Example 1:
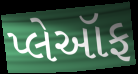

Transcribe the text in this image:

પ્લેઑફ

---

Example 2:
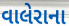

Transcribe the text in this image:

વાલેરાના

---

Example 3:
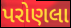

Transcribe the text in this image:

પરોણલા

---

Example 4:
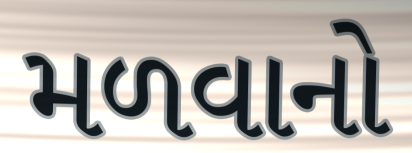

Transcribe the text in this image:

મળવાનો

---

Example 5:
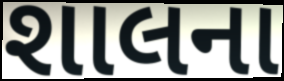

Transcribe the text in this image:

શાલના